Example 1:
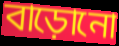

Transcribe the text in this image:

বাড়োনো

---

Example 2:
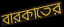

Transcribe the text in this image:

বারকাতের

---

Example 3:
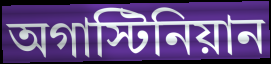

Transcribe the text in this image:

অগাস্টিনিয়ান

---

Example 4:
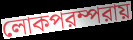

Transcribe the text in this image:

লোকপরম্পরায়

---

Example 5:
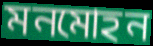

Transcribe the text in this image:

মনমোহন